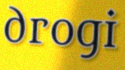
drogi